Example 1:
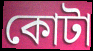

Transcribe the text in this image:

কোটা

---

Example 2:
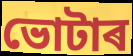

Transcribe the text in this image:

ভোটাৰ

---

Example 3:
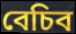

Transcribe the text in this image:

বেচিব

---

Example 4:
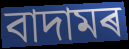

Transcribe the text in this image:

বাদামৰ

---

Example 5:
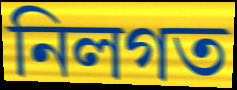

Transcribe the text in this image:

নিলগত